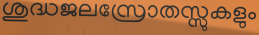
ശുദ്ധജലസ്രോതസ്സുകളും